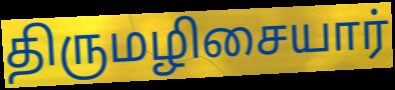
திருமழிசையார்